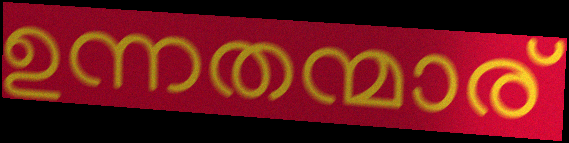
ഉന്നതന്മാര്